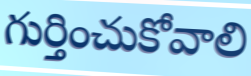
గుర్తించుకోవాలి